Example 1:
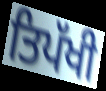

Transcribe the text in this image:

ਤਿਪੱਖੀ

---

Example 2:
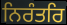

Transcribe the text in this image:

ਨਿਰੰਤਰਿ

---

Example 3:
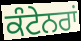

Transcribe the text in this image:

ਕੰਟੇਨਰਾਂ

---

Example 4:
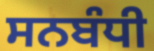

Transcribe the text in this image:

ਸਨਬੰਧੀ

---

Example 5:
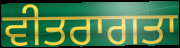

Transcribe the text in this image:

ਵੀਤਰਾਗਤਾ